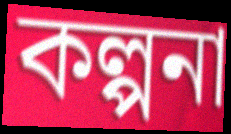
কল্পনা